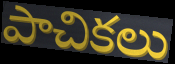
పాచికలు